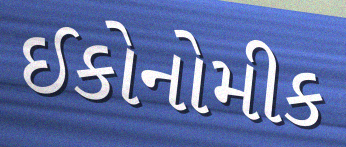
ઈકોનોમીક